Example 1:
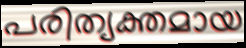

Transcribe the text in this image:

പരിത്യക്തമായ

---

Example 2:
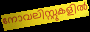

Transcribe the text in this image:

നോവലിസ്റ്റുകളിൽ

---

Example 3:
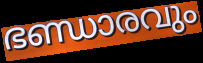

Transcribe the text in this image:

ഭണ്ഡാരവും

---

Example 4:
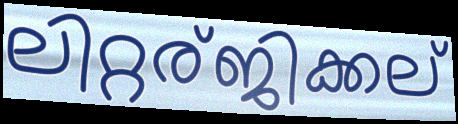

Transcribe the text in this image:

ലിറ്റര്ജിക്കല്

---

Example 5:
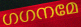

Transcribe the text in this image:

ഗഗനമേ